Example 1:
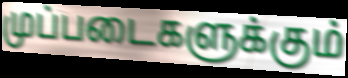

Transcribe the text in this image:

முப்படைகளுக்கும்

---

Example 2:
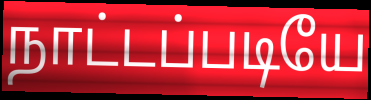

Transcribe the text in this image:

நாட்டப்படியே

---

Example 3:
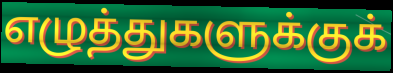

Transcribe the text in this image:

எழுத்துகளுக்குக்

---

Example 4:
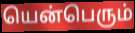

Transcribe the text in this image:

யென்பெரும்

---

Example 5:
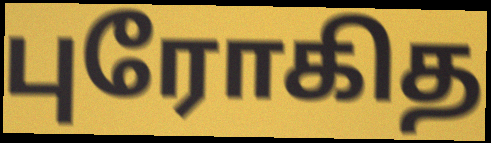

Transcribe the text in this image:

புரோகித